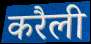
करैली